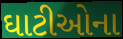
ઘાટીઓના